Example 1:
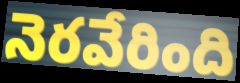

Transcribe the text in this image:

నెరవేరింది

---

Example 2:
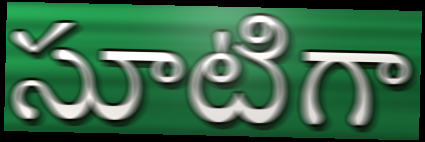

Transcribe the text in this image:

సూటిగా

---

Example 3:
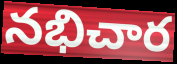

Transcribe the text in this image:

నభిచార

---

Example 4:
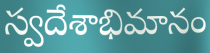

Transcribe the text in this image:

స్వదేశాభిమానం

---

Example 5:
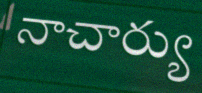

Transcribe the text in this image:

నాచార్యు